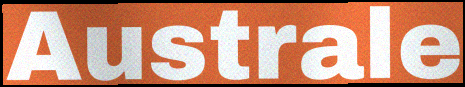
Australe